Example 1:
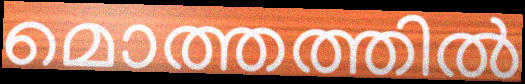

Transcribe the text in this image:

മൊത്തത്തിൽ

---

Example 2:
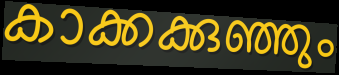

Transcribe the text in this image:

കാക്കക്കുഞ്ഞും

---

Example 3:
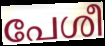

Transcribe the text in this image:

പേശീ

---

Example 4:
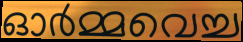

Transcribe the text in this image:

ഓർമ്മവെച്ച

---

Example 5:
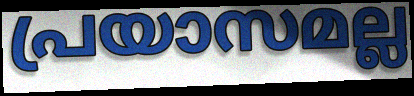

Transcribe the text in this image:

പ്രയാസമല്ല